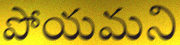
పోయమని